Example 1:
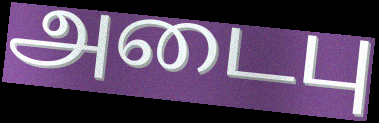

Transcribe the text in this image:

அடைபு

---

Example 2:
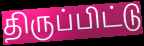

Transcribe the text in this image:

திருப்பிட்டு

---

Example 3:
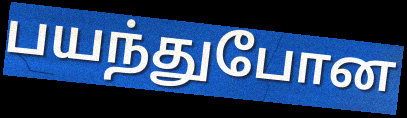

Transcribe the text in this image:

பயந்துபோன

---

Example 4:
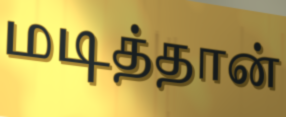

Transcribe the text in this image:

மடித்தான்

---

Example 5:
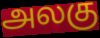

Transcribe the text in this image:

அலகு